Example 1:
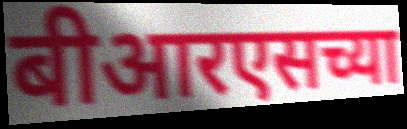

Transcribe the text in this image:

बीआरएसच्या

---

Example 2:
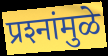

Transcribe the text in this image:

प्रश्‍नांमुळे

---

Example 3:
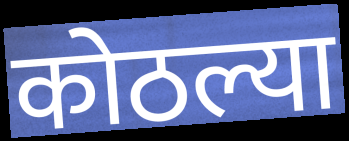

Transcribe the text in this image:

कोठल्या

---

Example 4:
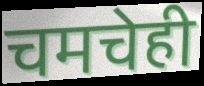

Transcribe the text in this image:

चमचेही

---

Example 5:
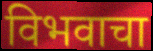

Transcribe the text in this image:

विभवाचा